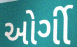
ઓર્ગી